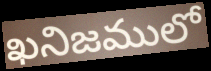
ఖనిజములో